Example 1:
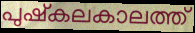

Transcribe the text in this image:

പുഷ്കലകാലത്ത്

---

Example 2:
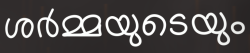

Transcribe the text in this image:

ശർമ്മയുടെയും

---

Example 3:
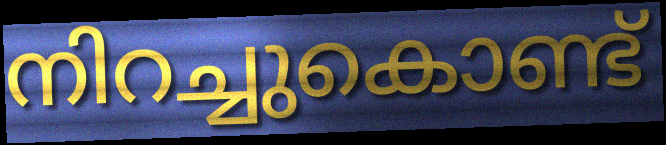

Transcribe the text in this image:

നിറച്ചുകൊണ്ട്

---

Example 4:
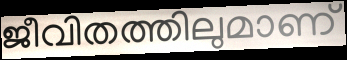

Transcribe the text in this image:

ജീവിതത്തിലുമാണ്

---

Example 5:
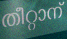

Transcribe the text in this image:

തീറ്റാന്